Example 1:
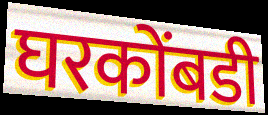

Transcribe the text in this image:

घरकोंबडी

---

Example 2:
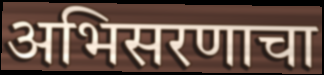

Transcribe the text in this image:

अभिसरणाचा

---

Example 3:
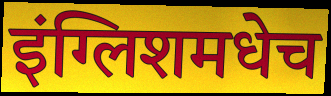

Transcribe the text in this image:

इंग्लिशमधेच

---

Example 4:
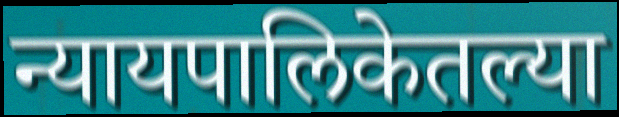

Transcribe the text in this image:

न्यायपालिकेतल्या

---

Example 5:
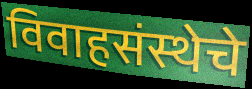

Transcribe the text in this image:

विवाहसंस्थेचे